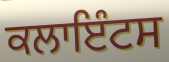
ਕਲਾਇੰਟਸ